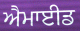
ਐਮਾਈਡ